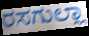
ರಸಗುಲ್ಲಾ